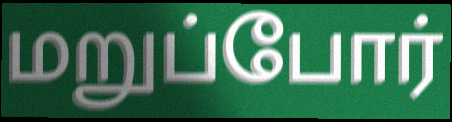
மறுப்போர்